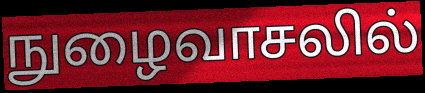
நுழைவாசலில்